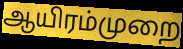
ஆயிரம்முறை